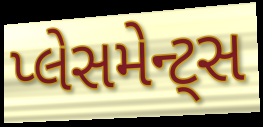
પ્લેસમેન્ટ્સ